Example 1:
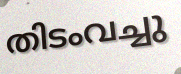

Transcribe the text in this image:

തിടംവച്ചു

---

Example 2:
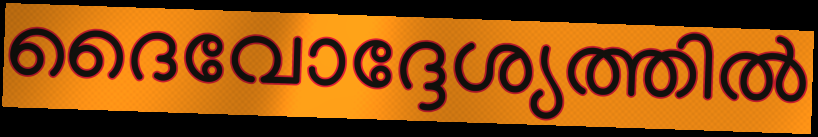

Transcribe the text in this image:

ദൈവോദ്ദേശ്യത്തിൽ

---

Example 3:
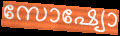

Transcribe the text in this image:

സോഷ്യോ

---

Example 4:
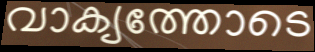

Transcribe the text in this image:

വാക്യത്തോടെ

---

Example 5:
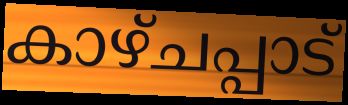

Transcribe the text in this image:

കാഴ്ചപ്പാട്